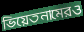
ভিয়েতনামেরও